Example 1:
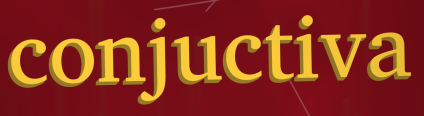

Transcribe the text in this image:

conjuctiva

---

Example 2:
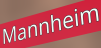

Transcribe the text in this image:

Mannheim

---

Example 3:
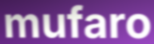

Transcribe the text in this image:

mufaro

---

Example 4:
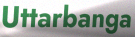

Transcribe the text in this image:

Uttarbanga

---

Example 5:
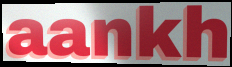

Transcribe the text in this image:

aankh